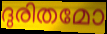
ദുരിതമോ